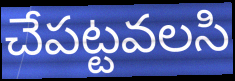
చేపట్టవలసి